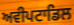
ਅਵੀਪਟਾਡਿਲ